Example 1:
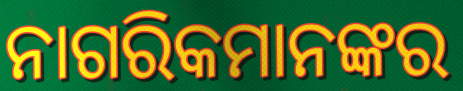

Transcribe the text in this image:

ନାଗରିକମାନଙ୍କର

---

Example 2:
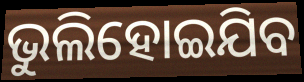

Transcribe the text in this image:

ଭୁଲିହୋଇଯିବ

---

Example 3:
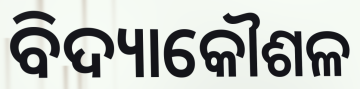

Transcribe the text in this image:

ବିଦ୍ୟାକୌଶଳ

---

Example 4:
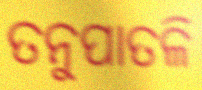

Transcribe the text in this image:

ତନୁପାତଳି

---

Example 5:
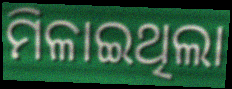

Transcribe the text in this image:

ମିଳାଇଥିଲା